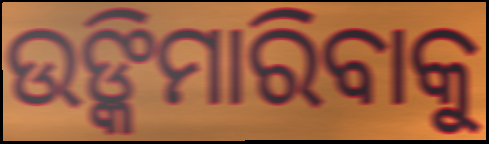
ଉଙ୍କିମାରିବାକୁ